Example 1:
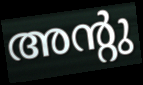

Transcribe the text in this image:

അന്റു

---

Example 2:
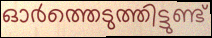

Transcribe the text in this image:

ഓർത്തെടുത്തിട്ടുണ്ട്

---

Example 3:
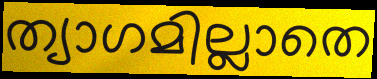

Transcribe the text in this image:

ത്യാഗമില്ലാതെ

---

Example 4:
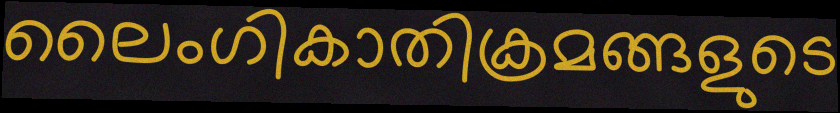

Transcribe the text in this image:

ലൈംഗികാതിക്രമങ്ങളുടെ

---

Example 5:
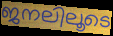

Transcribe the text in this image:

ജനലിലൂടെ